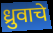
ध्रुवाचे